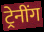
ट्रेनींग